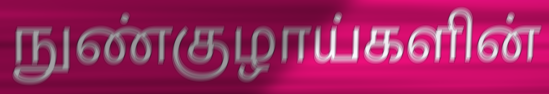
நுண்குழாய்களின்